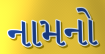
નામનો